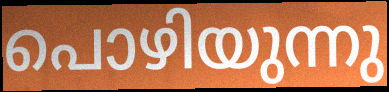
പൊഴിയുന്നു